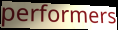
performers